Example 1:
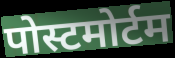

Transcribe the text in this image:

पोस्टमोर्टम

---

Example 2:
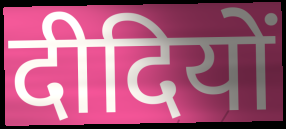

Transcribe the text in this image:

दीदियों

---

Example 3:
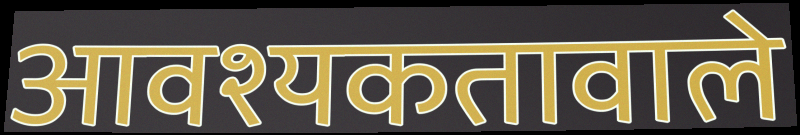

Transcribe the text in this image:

आवश्यकतावाले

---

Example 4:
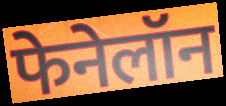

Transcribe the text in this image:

फेनेलॉन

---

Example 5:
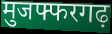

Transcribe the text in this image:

मुजफ्फरगढ़